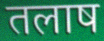
तलाष